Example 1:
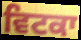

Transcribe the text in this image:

ਵਿਟਕਾ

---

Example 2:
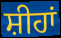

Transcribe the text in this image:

ਸ਼ੀਹਾਂ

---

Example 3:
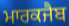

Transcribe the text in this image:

ਮਾਰਕਜੈਬ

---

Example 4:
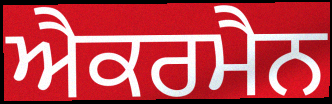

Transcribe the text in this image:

ਐਕਰਮੈਨ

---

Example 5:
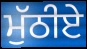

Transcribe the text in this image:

ਮੁੱਠੀਏ